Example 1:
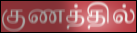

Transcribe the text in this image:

குணத்தில்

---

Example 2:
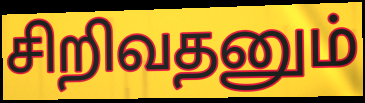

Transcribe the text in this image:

சிறிவதனும்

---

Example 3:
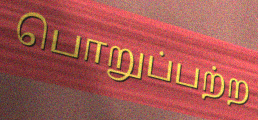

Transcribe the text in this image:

பொறுப்பற்ற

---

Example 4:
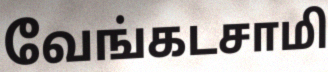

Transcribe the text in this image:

வேங்கடசாமி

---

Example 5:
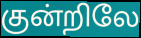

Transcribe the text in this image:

குன்றிலே